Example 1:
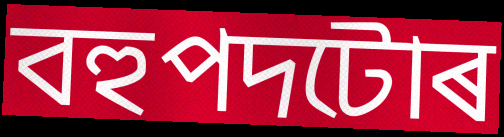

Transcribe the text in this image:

বহুপদটোৰ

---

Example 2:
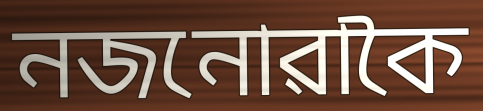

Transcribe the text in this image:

নজনোৱাকৈ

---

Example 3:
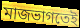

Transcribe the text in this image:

মাজভাগতেই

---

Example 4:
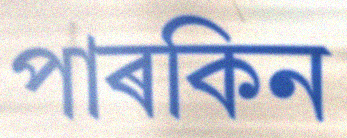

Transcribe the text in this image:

পাৰকিন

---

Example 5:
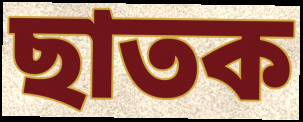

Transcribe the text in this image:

ছাতক